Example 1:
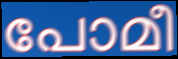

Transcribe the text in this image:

പോമീ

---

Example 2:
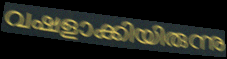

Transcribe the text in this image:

വഷളാക്കിയിരുന്നു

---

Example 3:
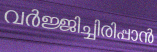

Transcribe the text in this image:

വർജ്ജിച്ചിരിപ്പാൻ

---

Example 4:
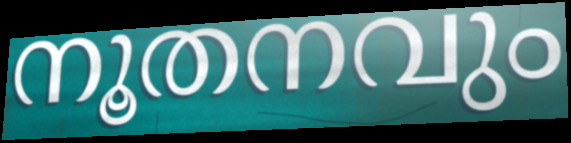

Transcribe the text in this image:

നൂതനവും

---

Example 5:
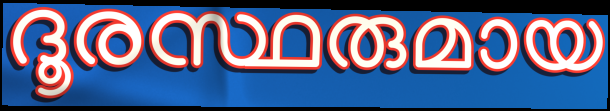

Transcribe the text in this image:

ദൂരസ്ഥരുമായ